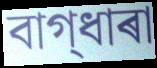
বাগ্‌ধাৰা